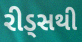
રીડ્સથી